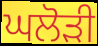
ਘਲੋਡ਼ੀ